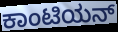
ಕಾಂಟಿಯನ್